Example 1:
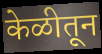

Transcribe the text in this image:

केळीतून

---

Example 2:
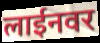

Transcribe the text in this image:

लाईनवर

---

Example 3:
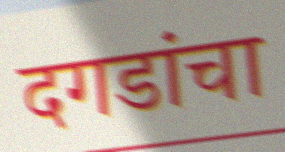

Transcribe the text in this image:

दगडांचा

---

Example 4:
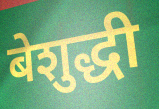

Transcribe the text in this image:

बेशुद्धी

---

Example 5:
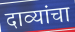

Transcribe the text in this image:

दाव्यांचा